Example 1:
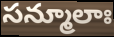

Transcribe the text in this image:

సన్మూలాః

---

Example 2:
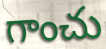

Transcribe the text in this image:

గాంచు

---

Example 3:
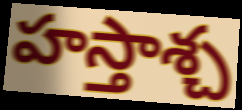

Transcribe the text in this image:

హస్తాశ్చ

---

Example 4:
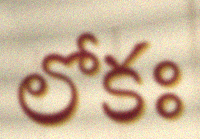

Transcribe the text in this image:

లోకః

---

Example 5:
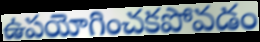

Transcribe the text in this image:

ఉపయోగించకపోవడం